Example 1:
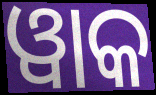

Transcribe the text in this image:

ୱାକ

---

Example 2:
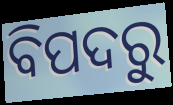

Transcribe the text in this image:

ବିପଦରୁ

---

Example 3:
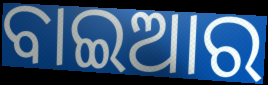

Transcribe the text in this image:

ବାଇଆର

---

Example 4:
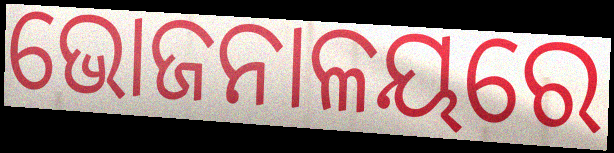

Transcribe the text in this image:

ଭୋଜନାଳୟରେ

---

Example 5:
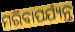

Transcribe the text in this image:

ମରିବାପର୍ଯ୍ୟନ୍ତ